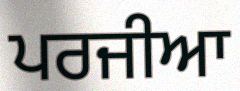
ਪਰਜੀਆ